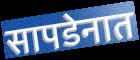
सापडेनात